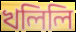
খলিলি